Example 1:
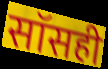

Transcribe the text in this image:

सॉसही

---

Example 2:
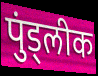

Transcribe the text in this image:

पुंड्लीक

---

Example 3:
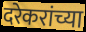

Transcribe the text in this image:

दरेकरांच्या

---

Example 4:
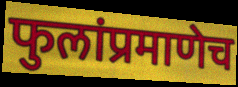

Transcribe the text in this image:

फुलांप्रमाणेच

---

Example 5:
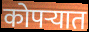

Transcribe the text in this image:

कोपऱ्यात